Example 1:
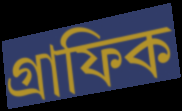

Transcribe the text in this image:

গ্ৰাফিক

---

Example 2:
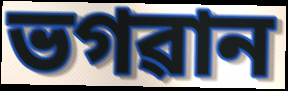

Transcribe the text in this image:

ভগৱান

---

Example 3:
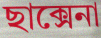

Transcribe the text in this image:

ছাক্সেনা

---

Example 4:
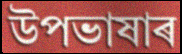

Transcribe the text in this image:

উপভাষাৰ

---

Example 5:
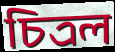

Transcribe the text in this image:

চিত্ৰল